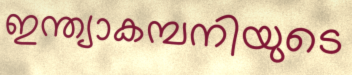
ഇന്ത്യാകമ്പനിയുടെ